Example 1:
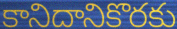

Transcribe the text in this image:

కానిదానికొరకు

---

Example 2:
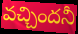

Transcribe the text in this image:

వచ్చిందనీ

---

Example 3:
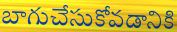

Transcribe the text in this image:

బాగుచేసుకోవడానికి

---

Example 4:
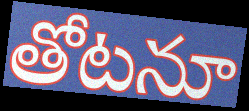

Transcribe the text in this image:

తోటనూ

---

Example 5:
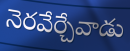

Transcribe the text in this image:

నెరవేర్చేవాడు